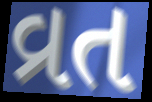
વ્રત